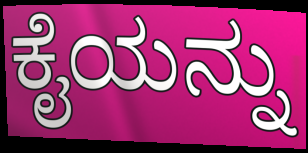
ಕೈಯನ್ನು